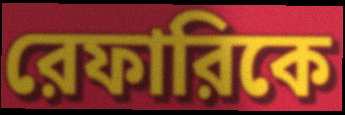
রেফারিকে